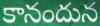
కానందున